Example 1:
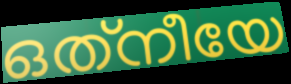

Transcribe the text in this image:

ഒത്‌നീയേ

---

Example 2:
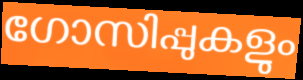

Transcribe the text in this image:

ഗോസിപ്പുകളും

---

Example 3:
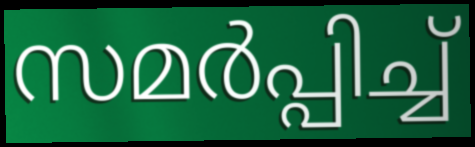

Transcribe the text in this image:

സമർപ്പിച്ച്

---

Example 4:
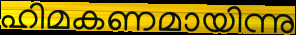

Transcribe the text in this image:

ഹിമകണമായിന്നു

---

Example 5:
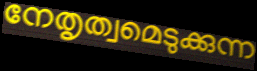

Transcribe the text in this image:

നേതൃത്വമെടുക്കുന്ന